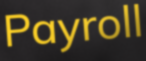
Payroll